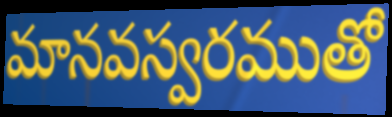
మానవస్వరముతో